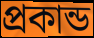
প্রকান্ড